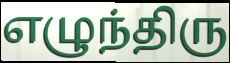
எழுந்திரு